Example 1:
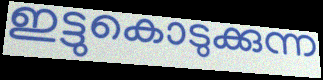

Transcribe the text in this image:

ഇട്ടുകൊടുക്കുന്ന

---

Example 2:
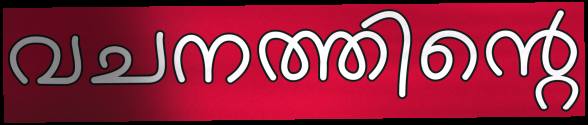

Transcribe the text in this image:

വചനത്തിന്റെ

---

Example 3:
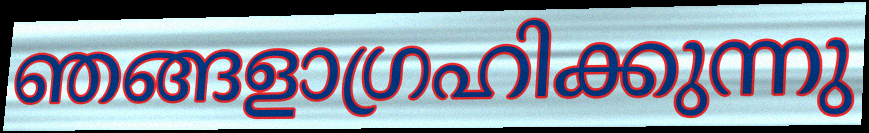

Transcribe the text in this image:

ഞങ്ങളാഗ്രഹിക്കുന്നു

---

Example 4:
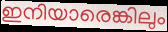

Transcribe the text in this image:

ഇനിയാരെങ്കിലും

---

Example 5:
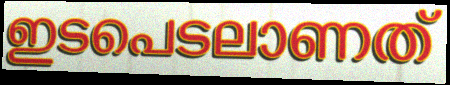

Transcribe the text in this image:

ഇടപെടലാണത്